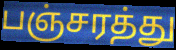
பஞ்சரத்து